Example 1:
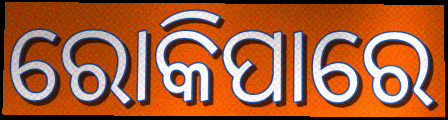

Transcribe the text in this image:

ରୋକିପାରେ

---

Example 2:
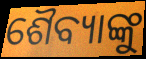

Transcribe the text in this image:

ଶୈବ୍ୟାଙ୍କୁ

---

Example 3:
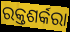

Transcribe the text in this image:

ରକ୍ତଶର୍କରା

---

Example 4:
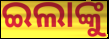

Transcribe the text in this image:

ଇଲାଙ୍କୁ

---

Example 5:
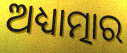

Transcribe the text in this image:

ଅଧ୍ୟାତ୍ମାର